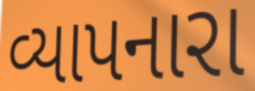
વ્યાપનારા